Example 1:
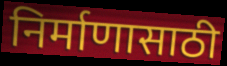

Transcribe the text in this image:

निर्माणासाठी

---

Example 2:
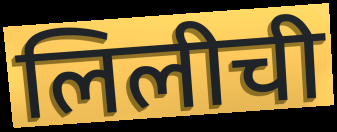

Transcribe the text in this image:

लिलीची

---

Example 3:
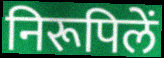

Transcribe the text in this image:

निरूपिलें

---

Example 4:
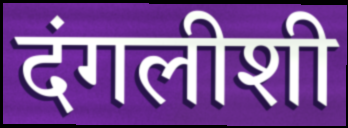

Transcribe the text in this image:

दंगलीशी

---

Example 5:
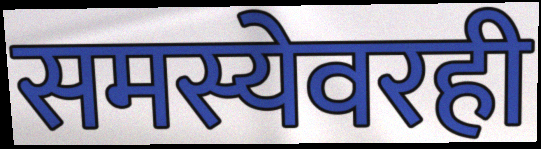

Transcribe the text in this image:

समस्येवरही